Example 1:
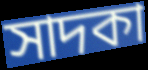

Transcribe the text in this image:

সাদকা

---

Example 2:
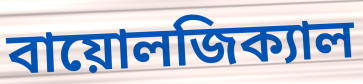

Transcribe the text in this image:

বায়োলজিক্যাল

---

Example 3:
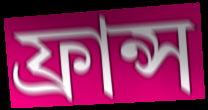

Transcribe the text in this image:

ফ্রান্স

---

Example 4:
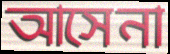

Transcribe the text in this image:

আসেনা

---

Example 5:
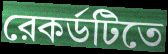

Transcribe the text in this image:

রেকর্ডটিতে